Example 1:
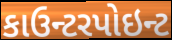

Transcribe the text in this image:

કાઉન્ટરપોઇન્ટ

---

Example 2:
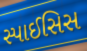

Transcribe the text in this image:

સ્પાઈસિસ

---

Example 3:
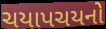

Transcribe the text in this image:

ચયાપચયનો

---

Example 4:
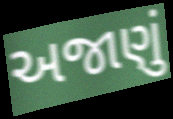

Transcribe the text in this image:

અજાણું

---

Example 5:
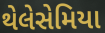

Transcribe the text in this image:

થેલેસેમિયા